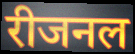
रीजनल